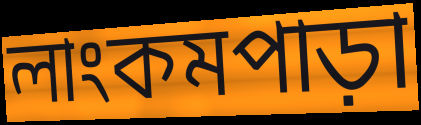
লাংকমপাড়া